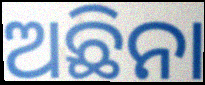
ଅଛିନା